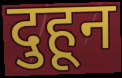
दुहून